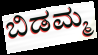
ಬಿಡಮ್ಮ